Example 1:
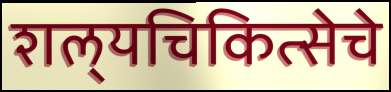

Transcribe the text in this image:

शल्यचिकित्सेचे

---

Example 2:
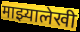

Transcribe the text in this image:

माझ्यालेखी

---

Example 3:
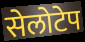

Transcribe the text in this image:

सेलोटेप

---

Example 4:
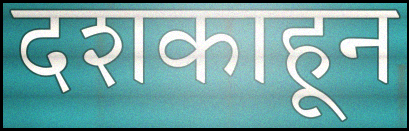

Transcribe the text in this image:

दशकाहून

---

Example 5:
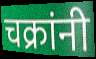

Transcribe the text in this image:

चक्रांनी